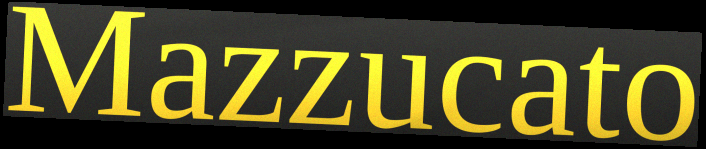
Mazzucato